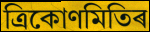
ত্ৰিকোণমিতিৰ